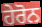
ਹੇਰੋਨ